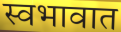
स्वभावात